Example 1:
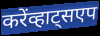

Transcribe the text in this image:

करेंव्हाट्सएप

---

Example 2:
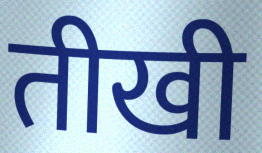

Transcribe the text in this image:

तीखी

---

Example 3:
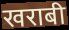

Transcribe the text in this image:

खराबी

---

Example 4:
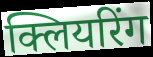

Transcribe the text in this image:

क्लियरिंग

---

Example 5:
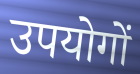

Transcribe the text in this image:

उपयोगों